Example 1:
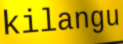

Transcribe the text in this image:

kilangu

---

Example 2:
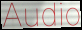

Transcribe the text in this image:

Audio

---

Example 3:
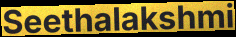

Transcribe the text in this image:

Seethalakshmi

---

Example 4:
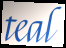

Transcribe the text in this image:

teal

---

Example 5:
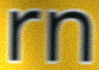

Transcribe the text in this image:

rn